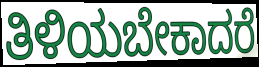
ತಿಳಿಯಬೇಕಾದರೆ